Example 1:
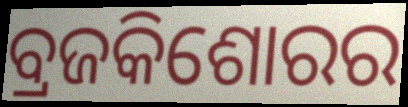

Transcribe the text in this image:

ବ୍ରଜକିଶୋରର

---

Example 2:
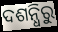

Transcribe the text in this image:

ଦଶନ୍ଧିରୁ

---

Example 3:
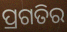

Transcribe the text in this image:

ପ୍ରଗତିର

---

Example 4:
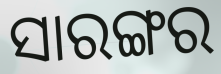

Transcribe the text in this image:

ସାରଙ୍ଗର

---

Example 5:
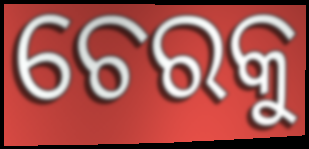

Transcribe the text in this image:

ଚେରକୁ